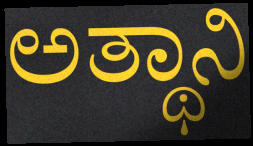
ಅತ್ಥಾನಿ